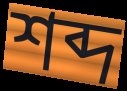
শব্দ